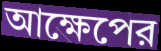
আক্ষেপের